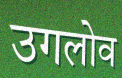
उगलोव